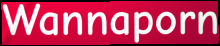
Wannaporn